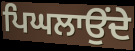
ਪਿਘਲਾਉਂਦੇ